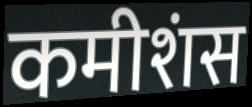
कमीशंस